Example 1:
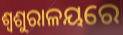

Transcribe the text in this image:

ଶ୍ୱଶୁରାଳୟରେ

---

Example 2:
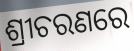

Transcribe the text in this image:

ଶ୍ରୀଚରଣରେ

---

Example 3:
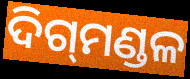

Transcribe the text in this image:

ଦିଗ୍‌ମଣ୍ଡଳ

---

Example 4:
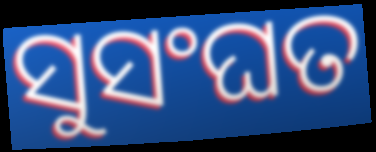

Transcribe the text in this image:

ସୁସଂଘତ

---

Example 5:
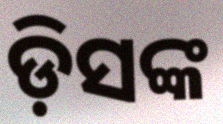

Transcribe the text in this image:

ଡ଼ିସଙ୍କ